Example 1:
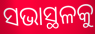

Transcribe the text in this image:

ସଭାସ୍ଥଳକୁ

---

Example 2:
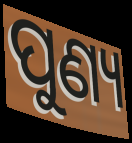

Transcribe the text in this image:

ପୁଣ୍ୟ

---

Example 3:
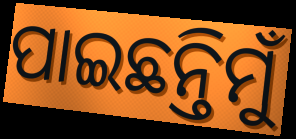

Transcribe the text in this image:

ପାଇଛନ୍ତିମୁଁ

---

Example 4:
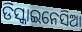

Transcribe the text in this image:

ଡିସ୍କାଇନେସିଆ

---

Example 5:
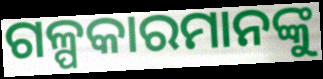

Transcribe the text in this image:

ଗଳ୍ପକାରମାନଙ୍କୁ